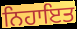
ਨਿਹਾਇਤ